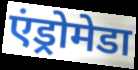
एंड्रोमेडा